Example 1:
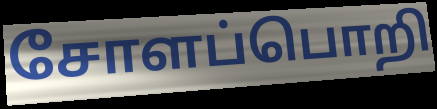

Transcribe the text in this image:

சோளப்பொறி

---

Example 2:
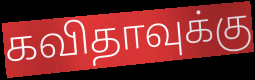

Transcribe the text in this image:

கவிதாவுக்கு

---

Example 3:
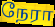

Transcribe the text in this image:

நேரா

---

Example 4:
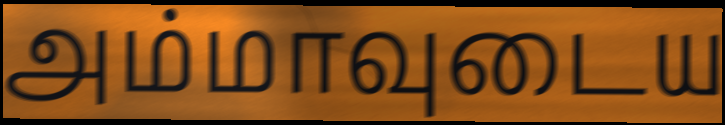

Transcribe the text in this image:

அம்மாவுடைய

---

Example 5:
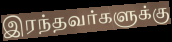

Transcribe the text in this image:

இரந்தவர்களுக்கு